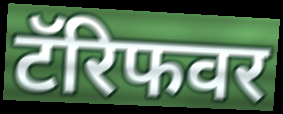
टॅरिफवर